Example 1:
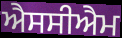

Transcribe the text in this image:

ਐਸਸੀਐਮ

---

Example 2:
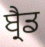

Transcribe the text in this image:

ਬ੍ਰੈਡ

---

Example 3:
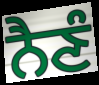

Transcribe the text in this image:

ਨੈਣੰ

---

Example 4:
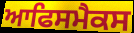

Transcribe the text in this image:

ਆਫਿਸਮੈਕਸ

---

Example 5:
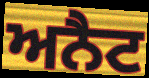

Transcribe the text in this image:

ਅਨੈਟ